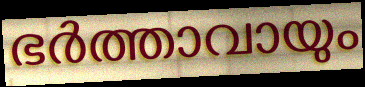
ഭർത്താവായും